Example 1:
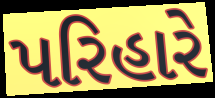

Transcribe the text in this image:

પરિહારે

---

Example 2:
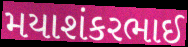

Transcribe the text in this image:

મયાશંકરભાઈ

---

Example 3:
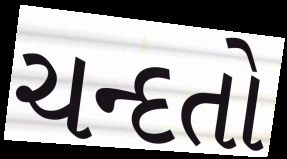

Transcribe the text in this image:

ચન્દતો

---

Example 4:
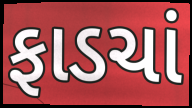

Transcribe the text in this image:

ફાડચાં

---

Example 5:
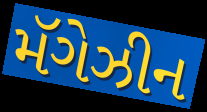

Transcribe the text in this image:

મૅગેઝીન